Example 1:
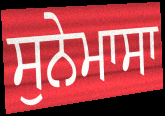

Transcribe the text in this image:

ਸੁਨੇਮਾਸਾ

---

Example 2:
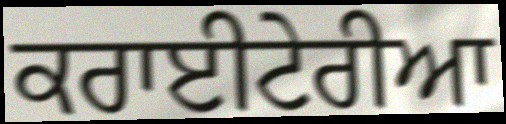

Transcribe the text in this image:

ਕਰਾਈਟੇਰੀਆ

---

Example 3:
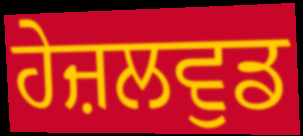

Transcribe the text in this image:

ਹੇਜ਼ਲਵੁਡ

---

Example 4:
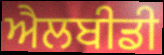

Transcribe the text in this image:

ਐਲਬੀਡੀ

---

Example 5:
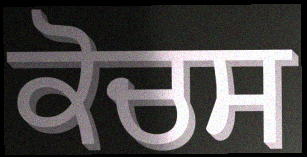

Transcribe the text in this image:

ਕੋਚਸ